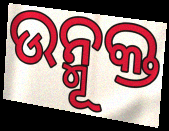
ଉନ୍ମୂକ୍ତ